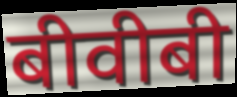
बीवीबी